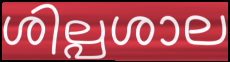
ശില്പശാല